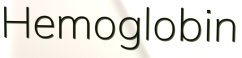
Hemoglobin